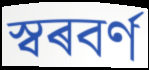
স্বৰবৰ্ণ